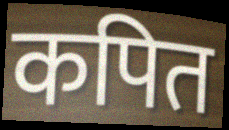
कपित